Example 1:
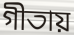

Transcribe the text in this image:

গীতায়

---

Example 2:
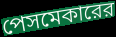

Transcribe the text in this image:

পেসমেকারের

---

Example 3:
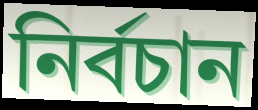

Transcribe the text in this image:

নির্বচান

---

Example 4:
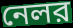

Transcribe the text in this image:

নেলর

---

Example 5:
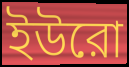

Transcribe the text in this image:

ইউরো